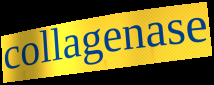
collagenase